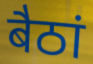
बैठां